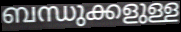
ബന്ധുക്കളുള്ള